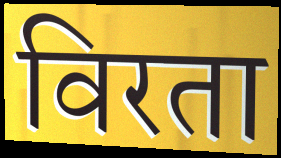
विरता